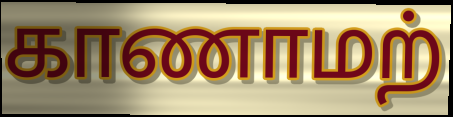
காணாமற்